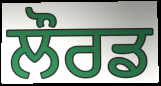
ਲੌਰਡ